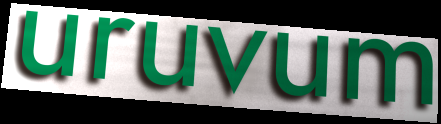
uruvum